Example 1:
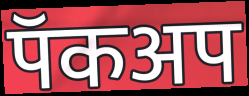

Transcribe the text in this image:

पॅकअप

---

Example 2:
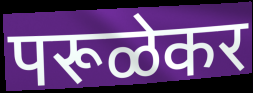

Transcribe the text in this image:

परूळेकर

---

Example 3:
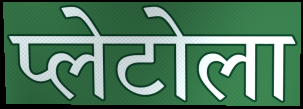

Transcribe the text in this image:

प्लेटोला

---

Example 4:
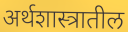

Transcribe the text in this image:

अर्थशास्त्रातील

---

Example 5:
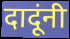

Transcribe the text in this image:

दादूंनी